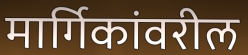
मार्गिकांवरील